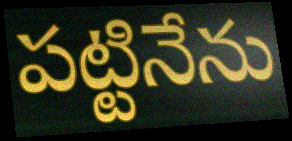
పట్టినేను